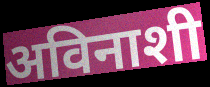
अविनाशी